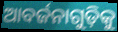
ଆବର୍ଜନାଗୁଡ଼ିକୁ